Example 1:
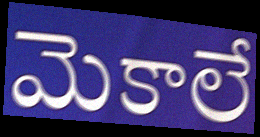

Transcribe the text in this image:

మెకాలే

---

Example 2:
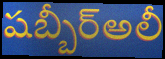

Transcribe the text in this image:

షబ్బీర్అలీ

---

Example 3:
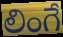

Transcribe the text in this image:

లింగే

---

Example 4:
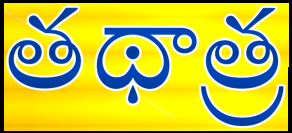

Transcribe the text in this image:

తథాత్ర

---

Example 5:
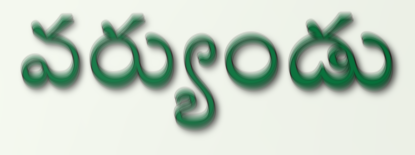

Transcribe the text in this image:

వర్యుండు